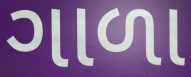
ગાળા